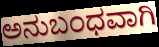
ಅನುಬಂಧವಾಗಿ